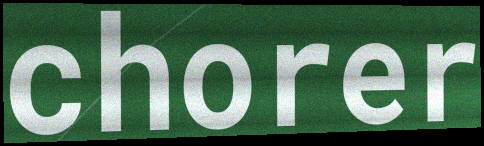
chorer